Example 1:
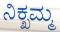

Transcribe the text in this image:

ನಿಕ್ಖಮ್ಮ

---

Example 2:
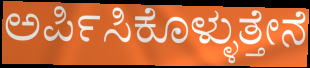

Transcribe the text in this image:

ಅರ್ಪಿಸಿಕೊಳ್ಳುತ್ತೇನೆ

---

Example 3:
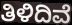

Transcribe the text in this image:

ತಿಳಿದಿವೆ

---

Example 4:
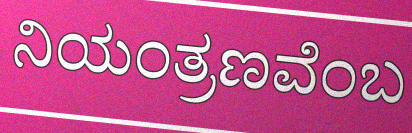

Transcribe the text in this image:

ನಿಯಂತ್ರಣವೆಂಬ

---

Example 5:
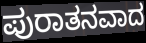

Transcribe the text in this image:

ಪುರಾತನವಾದ